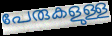
പേരുകളുള്ള